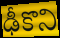
ఢీకొని